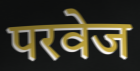
परवेज